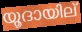
യൂദായില്